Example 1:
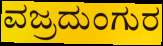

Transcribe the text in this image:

ವಜ್ರದುಂಗುರ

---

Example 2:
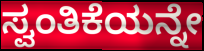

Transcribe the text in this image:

ಸ್ವಂತಿಕೆಯನ್ನೇ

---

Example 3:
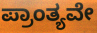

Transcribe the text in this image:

ಪ್ರಾಂತ್ಯವೇ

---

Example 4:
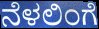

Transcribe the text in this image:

ನೆಳಲಿಂಗೆ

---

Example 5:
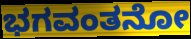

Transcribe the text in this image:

ಭಗವಂತನೋ